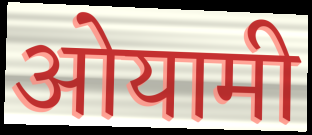
ओयामी